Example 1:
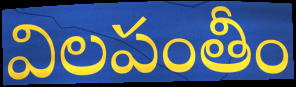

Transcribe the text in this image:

విలపంతీం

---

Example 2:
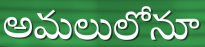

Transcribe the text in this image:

అమలులోనూ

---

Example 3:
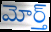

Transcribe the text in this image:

మోర్త్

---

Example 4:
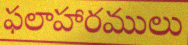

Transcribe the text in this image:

ఫలాహారములు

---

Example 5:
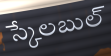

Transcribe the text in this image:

స్కేలబుల్